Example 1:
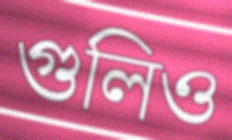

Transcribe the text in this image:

গুলিও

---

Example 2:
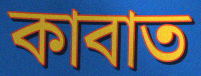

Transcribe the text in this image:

কাবাত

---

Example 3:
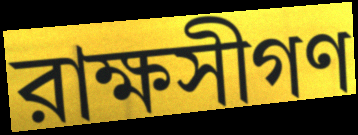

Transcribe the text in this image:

রাক্ষসীগণ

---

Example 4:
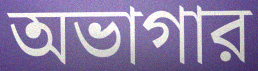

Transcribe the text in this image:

অভাগার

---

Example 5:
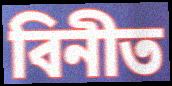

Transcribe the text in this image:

বিনীত